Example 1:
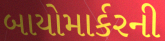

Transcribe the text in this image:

બાયોમાર્કરની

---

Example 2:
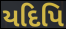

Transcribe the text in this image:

યદિપિ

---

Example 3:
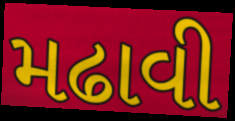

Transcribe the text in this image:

મઢાવી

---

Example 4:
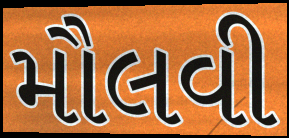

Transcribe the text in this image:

મૌલવી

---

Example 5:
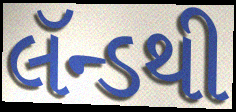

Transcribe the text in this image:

લૅન્ડથી